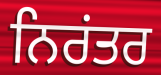
ਨਿਰਂਤਰ